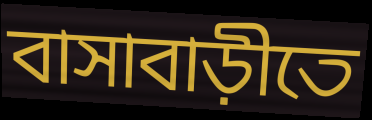
বাসাবাড়ীতে